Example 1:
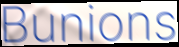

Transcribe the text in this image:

Bunions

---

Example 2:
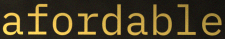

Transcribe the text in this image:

afordable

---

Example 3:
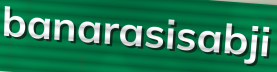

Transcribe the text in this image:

banarasisabji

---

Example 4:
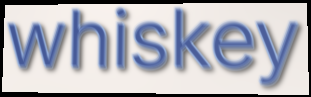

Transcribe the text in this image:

whiskey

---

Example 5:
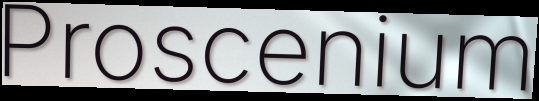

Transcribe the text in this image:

Proscenium